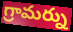
గ్రామర్ను